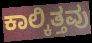
ಕಾಲ್ಕಿತ್ತವು